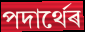
পদাৰ্থেৰ